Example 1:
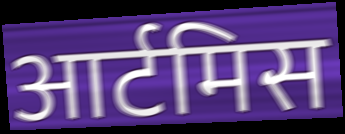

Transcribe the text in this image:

आर्टमिस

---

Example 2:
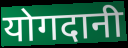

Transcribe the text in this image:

योगदानी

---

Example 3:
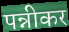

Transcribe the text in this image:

पन्नीकर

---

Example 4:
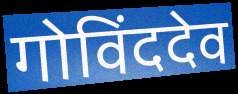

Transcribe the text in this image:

गोविंददेव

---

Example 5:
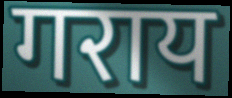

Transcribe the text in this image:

गराय